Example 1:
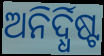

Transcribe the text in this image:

ଅନିର୍ଦ୍ଧିଷ୍ଟ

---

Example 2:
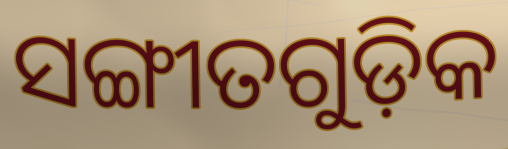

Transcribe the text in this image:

ସଙ୍ଗୀତଗୁଡ଼ିକ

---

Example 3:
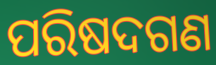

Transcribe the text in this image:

ପରିଷଦଗଣ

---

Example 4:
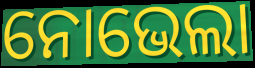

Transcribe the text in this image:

ନୋଭେଲା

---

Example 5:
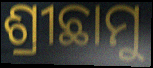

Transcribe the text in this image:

ଶ୍ରୀଛାମୁ